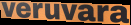
veruvara